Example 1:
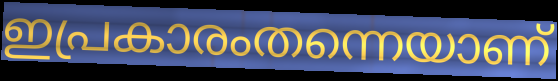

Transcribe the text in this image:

ഇപ്രകാരംതന്നെയാണ്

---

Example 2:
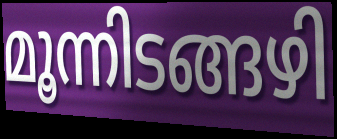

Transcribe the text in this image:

മൂന്നിടങ്ങഴി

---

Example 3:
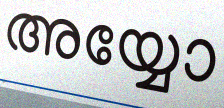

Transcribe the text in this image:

അയ്യോ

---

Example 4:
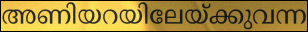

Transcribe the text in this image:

അണിയറയിലേയ്ക്കുവന്ന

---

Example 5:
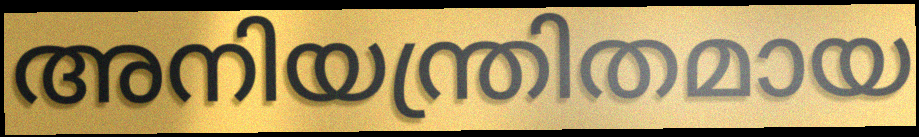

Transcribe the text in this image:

അനിയന്ത്രിതമായ